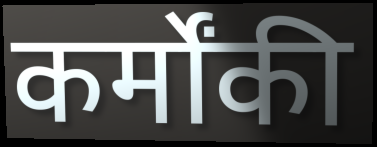
कर्मोंकी